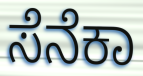
ಸೆನೆಕಾ